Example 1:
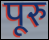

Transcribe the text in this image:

पूरु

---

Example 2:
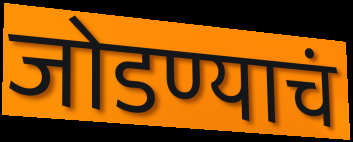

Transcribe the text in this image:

जोडण्याचं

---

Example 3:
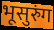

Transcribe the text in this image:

भूसुरुंग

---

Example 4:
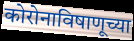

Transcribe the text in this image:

कोरोनाविषाणूच्या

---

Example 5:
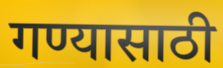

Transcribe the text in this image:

गण्यासाठी